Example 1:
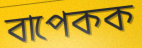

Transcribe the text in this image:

বাপেকক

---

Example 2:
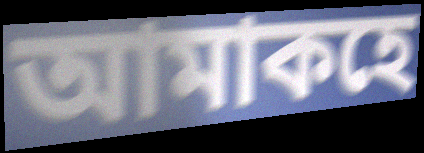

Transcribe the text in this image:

আমাকহে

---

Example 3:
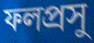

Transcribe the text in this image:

ফলপ্ৰসু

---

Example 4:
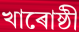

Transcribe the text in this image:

খাৰোষ্ঠী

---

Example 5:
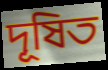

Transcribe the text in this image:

দূষিত